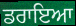
ਡਰਾਇਆ